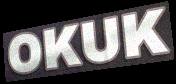
OKUK